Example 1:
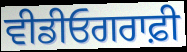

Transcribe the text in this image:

ਵੀਡੀਓਗਰਾਫ਼ੀ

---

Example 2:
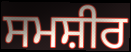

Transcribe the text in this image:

ਸਮਸ਼ੀਰ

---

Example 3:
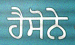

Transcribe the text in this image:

ਹੈਸੋਨੇ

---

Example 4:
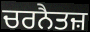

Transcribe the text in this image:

ਚਰਨੈਤਜ਼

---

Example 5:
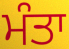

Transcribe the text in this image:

ਮੰਤਾ